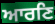
ਆਰਣਿ